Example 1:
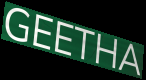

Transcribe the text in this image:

GEETHA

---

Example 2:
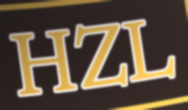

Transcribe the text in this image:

HZL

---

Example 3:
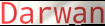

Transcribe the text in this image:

Darwan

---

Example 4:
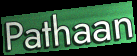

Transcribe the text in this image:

Pathaan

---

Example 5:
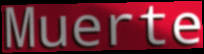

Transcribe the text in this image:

Muerte